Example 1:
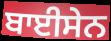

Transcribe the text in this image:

ਬਾਈਸੇਨ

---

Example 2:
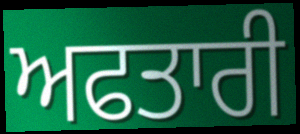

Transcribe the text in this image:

ਅਫਤਾਰੀ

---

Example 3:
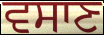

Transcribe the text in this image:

ਵਸਾਣ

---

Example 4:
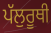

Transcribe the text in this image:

ਪੱਲੁਰੂਥੀ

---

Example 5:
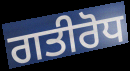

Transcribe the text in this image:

ਗਤੀਰੋਧ